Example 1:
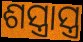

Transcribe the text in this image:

ଶସ୍ତ୍ରାସ୍ତ୍ର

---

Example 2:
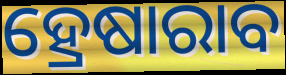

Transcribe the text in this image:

ହ୍ରେଷାରାବ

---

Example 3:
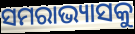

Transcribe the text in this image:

ସମରାଭ୍ୟାସକୁ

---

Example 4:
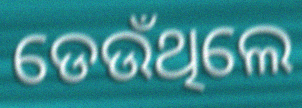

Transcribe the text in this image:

ଡେଉଁଥିଲେ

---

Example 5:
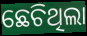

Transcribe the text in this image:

ଛେଚିଥିଲା